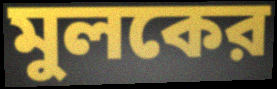
মুলকের